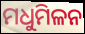
ମଧୁମିଳନ